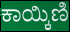
ಕಾಯ್ಕಿಣಿ